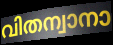
വിതന്വാനാ